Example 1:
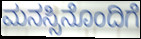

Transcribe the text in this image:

ಮನಸ್ಸಿನೊಂದಿಗೆ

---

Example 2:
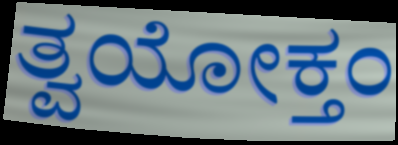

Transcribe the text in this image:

ತ್ವಯೋಕ್ತಂ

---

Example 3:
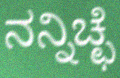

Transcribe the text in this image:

ನನ್ನಿಚ್ಛೆ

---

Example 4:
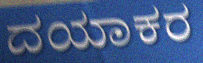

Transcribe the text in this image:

ದಯಾಕರ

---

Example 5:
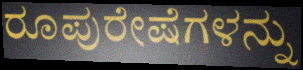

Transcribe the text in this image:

ರೂಪುರೇಷೆಗಳನ್ನು